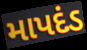
માપદંડ